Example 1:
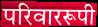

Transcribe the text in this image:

परिवाररूपी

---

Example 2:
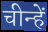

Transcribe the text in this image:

चीन्हें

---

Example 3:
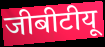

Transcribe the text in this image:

जीबीटीयू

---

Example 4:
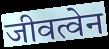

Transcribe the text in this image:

जीवत्वेन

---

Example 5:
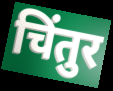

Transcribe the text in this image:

चिंतुर